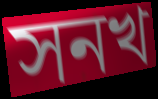
সনখ